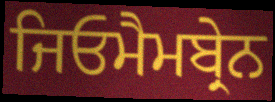
ਜਿਓਮੈਮਬ੍ਰੇਨ